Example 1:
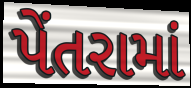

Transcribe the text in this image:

પેંતરામાં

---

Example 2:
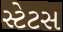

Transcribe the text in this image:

સ્ટેટસ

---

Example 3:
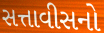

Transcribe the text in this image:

સત્તાવીસનો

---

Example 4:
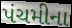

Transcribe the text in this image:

પંચમીના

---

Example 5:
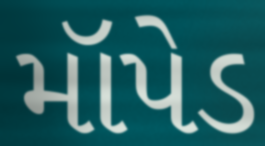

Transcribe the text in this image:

મૉપેડ